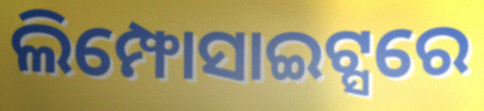
ଲିମ୍ଫୋସାଇଟ୍ସରେ